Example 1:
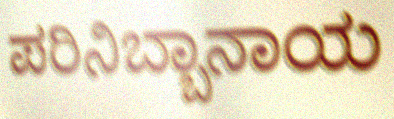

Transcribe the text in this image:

ಪರಿನಿಬ್ಬಾನಾಯ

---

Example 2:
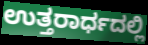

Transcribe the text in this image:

ಉತ್ತರಾರ್ಧದಲ್ಲಿ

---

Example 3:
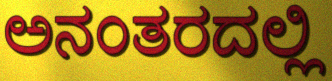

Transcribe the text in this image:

ಅನಂತರದಲ್ಲಿ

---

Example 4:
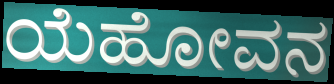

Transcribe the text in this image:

ಯೆಹೋವನ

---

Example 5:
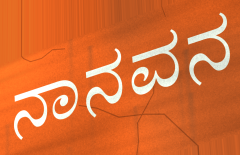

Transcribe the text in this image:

ನಾನವನ